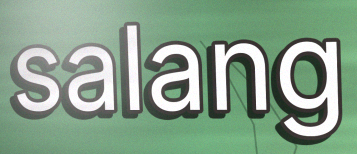
salang